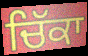
ਚਿੱਕਾ